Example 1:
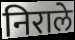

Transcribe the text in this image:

निराले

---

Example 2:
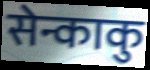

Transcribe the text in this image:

सेन्काकु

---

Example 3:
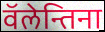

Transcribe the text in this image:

वॅलेन्तिना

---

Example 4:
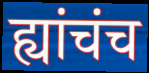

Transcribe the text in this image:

ह्यांचंच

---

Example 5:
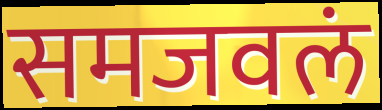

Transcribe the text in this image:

समजवलं